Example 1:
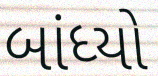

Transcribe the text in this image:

બાંધ્યો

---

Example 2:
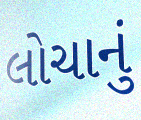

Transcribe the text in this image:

લોચાનું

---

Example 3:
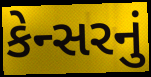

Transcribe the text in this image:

કેન્સરનું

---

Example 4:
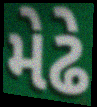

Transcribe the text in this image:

મેઢે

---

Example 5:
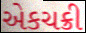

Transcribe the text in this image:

એકચક્રી